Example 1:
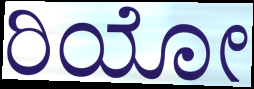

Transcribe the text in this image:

ರಿಯೋ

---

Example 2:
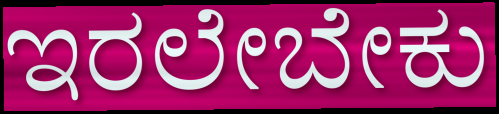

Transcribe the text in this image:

ಇರಲೇಬೇಕು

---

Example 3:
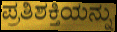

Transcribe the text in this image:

ಪ್ರತಿಶಕ್ತಿಯನ್ನು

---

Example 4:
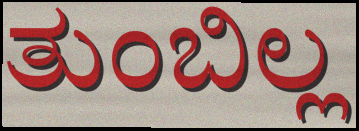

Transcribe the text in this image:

ತುಂಬಿಲ್ಲ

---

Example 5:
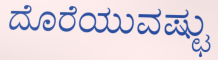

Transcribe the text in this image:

ದೊರೆಯುವಷ್ಟು